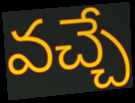
వచ్చే